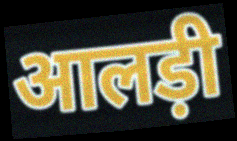
आलड़ी